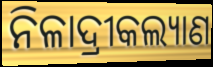
ନିଳାଦ୍ରୀକଲ୍ୟାଣ